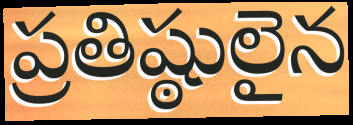
ప్రతిష్ఠులైన